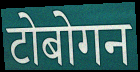
टोबोगन